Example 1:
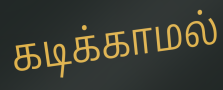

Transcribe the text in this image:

கடிக்காமல்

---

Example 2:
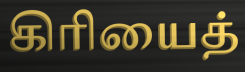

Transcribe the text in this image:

கிரியைத்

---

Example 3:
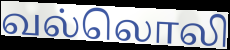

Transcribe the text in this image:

வல்லொலி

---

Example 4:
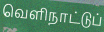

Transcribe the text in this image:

வெளிநாட்டுப்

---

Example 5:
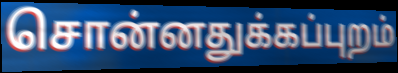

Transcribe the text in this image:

சொன்னதுக்கப்புறம்